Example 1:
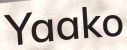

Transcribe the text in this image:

Yaako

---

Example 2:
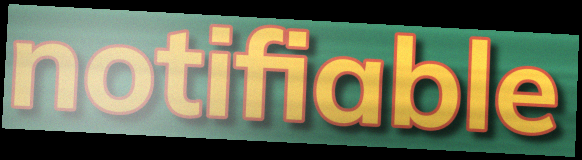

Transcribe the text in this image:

notifiable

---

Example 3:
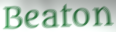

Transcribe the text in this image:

Beaton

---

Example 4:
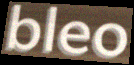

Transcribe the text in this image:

bleo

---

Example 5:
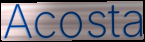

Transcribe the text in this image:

Acosta